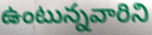
ఉంటున్నవారిని